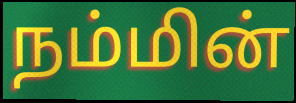
நம்மின்